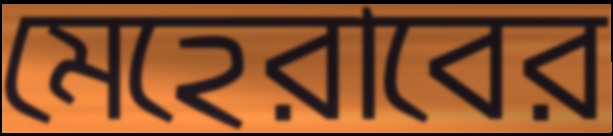
মেহেরাবের